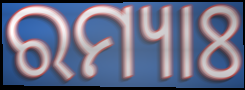
ରମ୍ୟାଃ